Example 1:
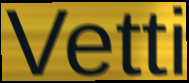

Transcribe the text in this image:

Vetti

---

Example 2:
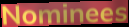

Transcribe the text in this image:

Nominees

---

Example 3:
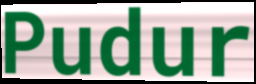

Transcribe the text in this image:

Pudur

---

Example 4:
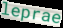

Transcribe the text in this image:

leprae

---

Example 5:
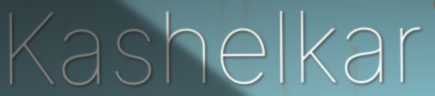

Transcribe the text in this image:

Kashelkar